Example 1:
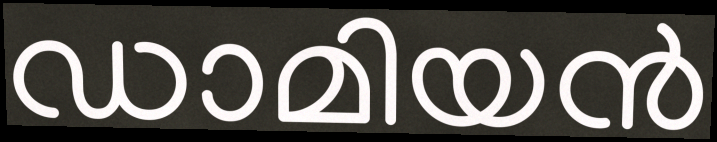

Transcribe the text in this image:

ഡാമിയൻ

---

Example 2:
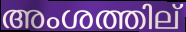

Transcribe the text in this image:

അംശത്തില്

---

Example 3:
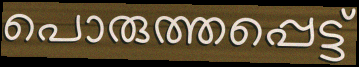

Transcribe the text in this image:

പൊരുത്തപ്പെട്ട്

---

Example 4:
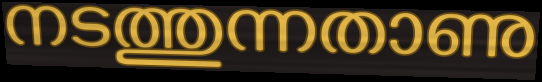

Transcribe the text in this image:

നടത്തുന്നതാണു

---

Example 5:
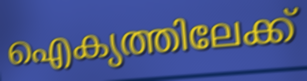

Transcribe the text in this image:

ഐക്യത്തിലേക്ക്